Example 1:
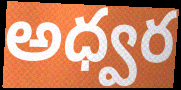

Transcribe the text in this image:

అధ్వర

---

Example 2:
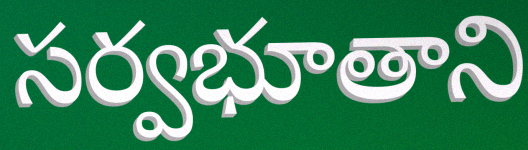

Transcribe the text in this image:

సర్వభూతాని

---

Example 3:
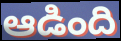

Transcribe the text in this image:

ఆడింది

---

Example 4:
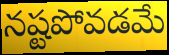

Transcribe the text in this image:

నష్టపోవడమే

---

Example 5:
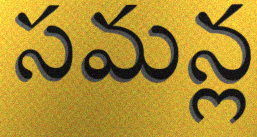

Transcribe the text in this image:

సమన్ల